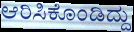
ಆರಿಸಿಕೊಂಡಿದ್ದು